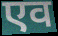
एव